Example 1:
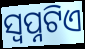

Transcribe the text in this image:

ସ୍ବପ୍ନଟିଏ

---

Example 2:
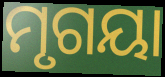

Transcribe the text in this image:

ମୃଗୟା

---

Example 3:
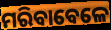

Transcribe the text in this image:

ମରିବାବେଳେ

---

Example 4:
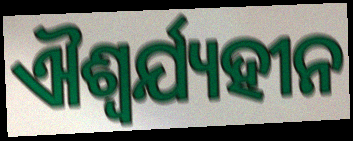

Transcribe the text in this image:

ଐଶ୍ଵର୍ଯ୍ୟହୀନ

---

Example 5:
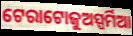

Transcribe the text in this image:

ଟେରାଟୋଜୁଅସ୍ପର୍ମିଆ